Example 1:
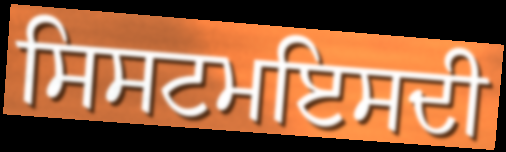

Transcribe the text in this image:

ਸਿਸਟਮਇਸਦੀ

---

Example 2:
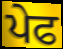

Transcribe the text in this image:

ਪੇਫ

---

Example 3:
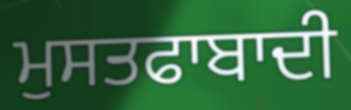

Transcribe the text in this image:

ਮੁਸਤਫਾਬਾਦੀ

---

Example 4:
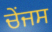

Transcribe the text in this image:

ਚੇਂਜਸ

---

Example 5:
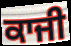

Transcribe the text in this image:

ਕਾਜੀ